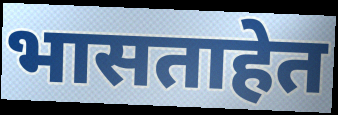
भासताहेत